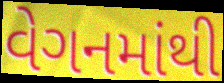
વેગનમાંથી